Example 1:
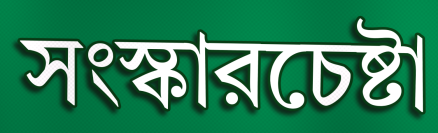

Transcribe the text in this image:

সংস্কারচেষ্টা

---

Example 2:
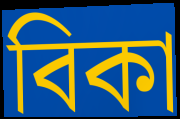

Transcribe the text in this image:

বিকা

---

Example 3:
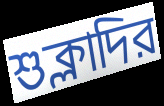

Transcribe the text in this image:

শুক্লাদির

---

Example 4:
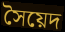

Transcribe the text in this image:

সৈয়েদ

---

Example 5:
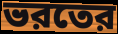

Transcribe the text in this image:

ভরতের